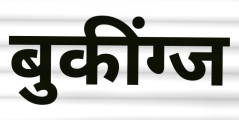
बुकींग्ज